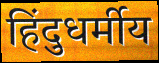
हिंदुधर्मीय